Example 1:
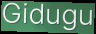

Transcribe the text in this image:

Gidugu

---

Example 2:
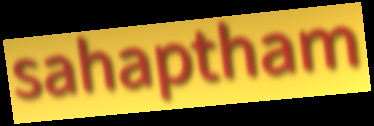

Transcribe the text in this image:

sahaptham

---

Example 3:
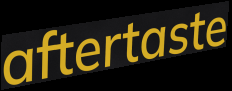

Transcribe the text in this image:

aftertaste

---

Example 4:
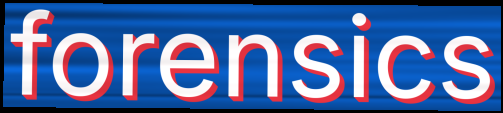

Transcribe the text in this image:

forensics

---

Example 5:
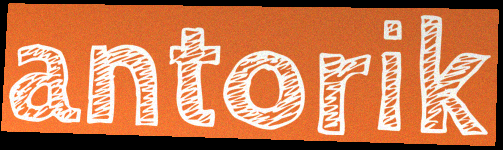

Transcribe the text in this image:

antorik